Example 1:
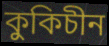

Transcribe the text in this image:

কুকিচীন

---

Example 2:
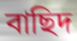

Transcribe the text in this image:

বাছিদ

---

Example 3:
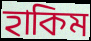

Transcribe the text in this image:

হাকিম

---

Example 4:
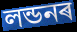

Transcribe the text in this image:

লন্ডনৰ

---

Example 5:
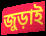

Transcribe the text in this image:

জুড়াই